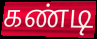
கண்டி